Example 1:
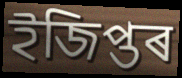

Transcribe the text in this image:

ইজিপ্তৰ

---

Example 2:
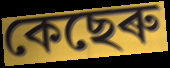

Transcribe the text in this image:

কেছেৰু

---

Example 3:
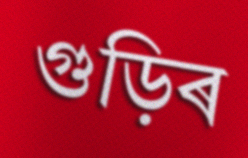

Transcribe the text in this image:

গুড়িৰ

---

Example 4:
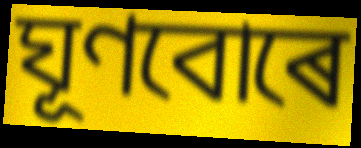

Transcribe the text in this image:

ঘূণবোৰে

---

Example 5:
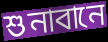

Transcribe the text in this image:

শুনাবানে